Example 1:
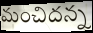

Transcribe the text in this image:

మంచిదన్న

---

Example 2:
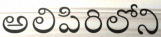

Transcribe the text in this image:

అలిపిరిలోని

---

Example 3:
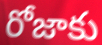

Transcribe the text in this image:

రోజాకు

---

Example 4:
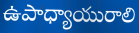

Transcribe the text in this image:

ఉపాధ్యాయురాలి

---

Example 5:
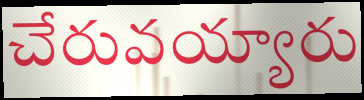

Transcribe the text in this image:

చేరువయ్యారు